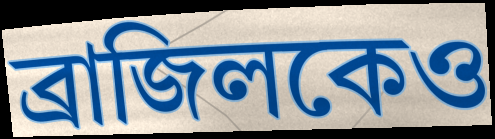
ব্রাজিলকেও